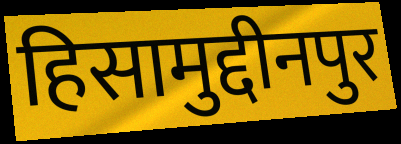
हिसामुद्दीनपुर